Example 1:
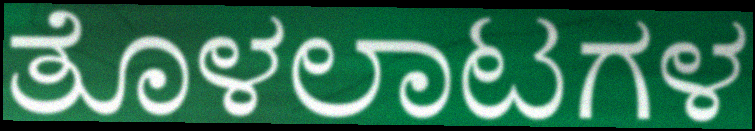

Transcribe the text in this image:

ತೊಳಲಾಟಗಳ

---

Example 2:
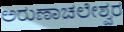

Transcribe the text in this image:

ಅರುಣಾಚಲೇಶ್ವರ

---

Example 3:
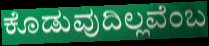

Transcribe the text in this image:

ಕೊಡುವುದಿಲ್ಲವೆಂಬ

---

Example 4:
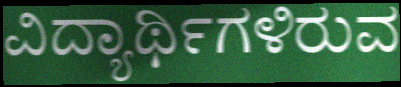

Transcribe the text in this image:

ವಿದ್ಯಾರ್ಥಿಗಳಿರುವ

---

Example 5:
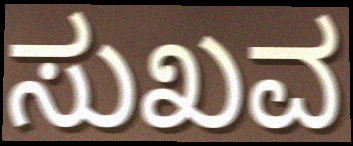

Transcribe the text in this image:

ಸುಖವ